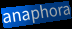
anaphora